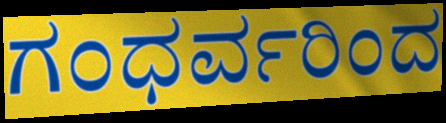
ಗಂಧರ್ವರಿಂದ